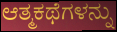
ಆತ್ಮಕಥೆಗಳನ್ನು